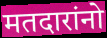
मतदारांनो